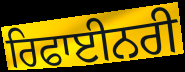
ਰਿਫਾਈਨਰੀ